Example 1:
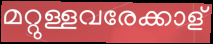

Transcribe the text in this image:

മറ്റുള്ളവരേക്കാള്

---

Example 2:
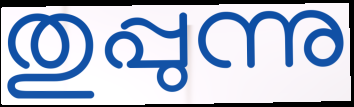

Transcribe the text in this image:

തുപ്പുന്നു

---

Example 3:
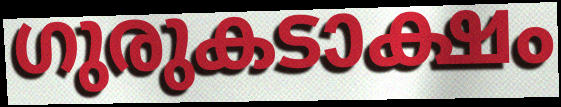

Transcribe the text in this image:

ഗുരുകടാക്ഷം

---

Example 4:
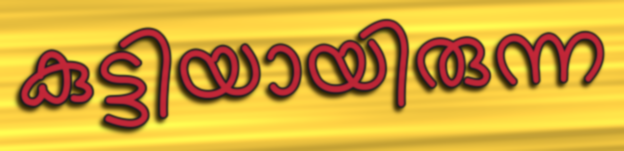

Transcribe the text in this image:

കുട്ടിയായിരുന്ന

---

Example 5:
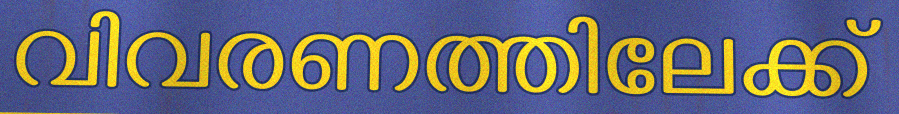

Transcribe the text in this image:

വിവരണത്തിലേക്ക്